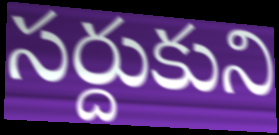
సర్దుకుని